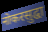
नोकरसुद्धा